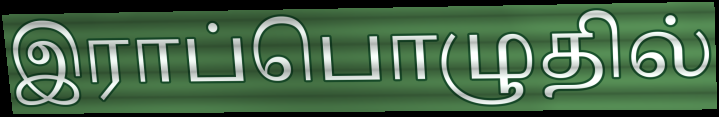
இராப்பொழுதில்